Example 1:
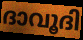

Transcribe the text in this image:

ദാവൂദി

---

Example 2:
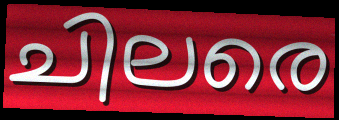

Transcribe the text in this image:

ചിലരെ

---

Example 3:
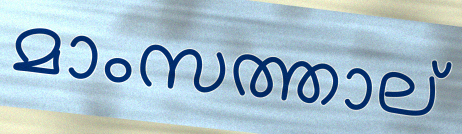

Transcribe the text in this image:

മാംസത്താല്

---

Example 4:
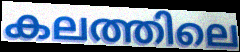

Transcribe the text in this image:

കലത്തിലെ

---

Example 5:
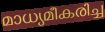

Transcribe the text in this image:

മാധ്യമീകരിച്ച